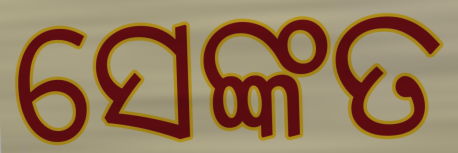
ସେଙ୍କତ